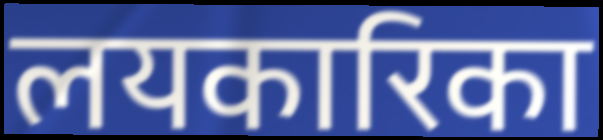
लयकारिका